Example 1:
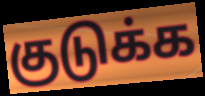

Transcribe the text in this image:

குடுக்க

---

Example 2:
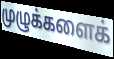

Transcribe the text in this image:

முழுக்களைக்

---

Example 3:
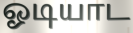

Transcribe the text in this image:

ஓடியாட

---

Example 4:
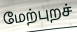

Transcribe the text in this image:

மேற்புறச்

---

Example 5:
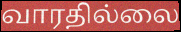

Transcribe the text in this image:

வாரதில்லை